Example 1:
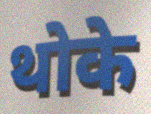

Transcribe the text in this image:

थोके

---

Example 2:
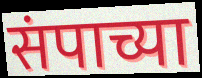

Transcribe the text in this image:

संपाच्या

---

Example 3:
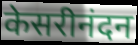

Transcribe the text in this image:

केसरीनंदन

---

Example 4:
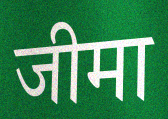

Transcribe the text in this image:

जीमा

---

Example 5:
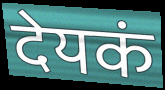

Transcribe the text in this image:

देयकं